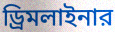
ড্রিমলাইনার